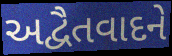
અદ્વૈતવાદને